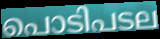
പൊടിപടല